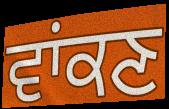
ਵਾਂਕਣ